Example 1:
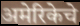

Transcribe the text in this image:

अमेरिकेचे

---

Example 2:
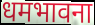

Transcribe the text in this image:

धमभावना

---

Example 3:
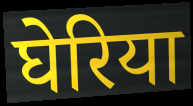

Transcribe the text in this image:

घेरिया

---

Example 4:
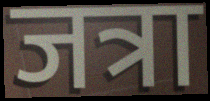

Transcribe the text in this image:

जत्रा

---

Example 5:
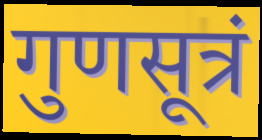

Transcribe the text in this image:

गुणसूत्रं